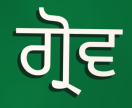
ਗ੍ਰੋਵ